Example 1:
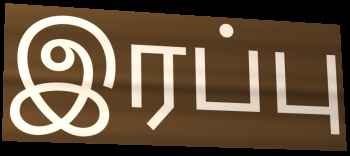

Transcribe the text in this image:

இரப்பு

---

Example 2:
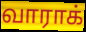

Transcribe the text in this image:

வாராக்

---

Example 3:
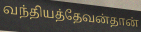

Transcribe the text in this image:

வந்தியத்தேவன்தான்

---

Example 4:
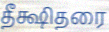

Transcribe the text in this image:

தீக்ஷிதரை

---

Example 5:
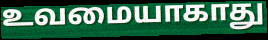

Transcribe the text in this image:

உவமையாகாது